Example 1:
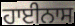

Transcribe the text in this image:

ਹਾਈਨਾਸ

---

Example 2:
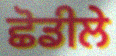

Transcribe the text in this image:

ਛੋਡੀਲੇ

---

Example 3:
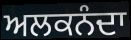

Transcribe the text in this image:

ਅਲਕਨੰਦਾ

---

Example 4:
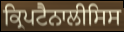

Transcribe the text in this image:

ਕ੍ਰਿਪਟੈਨਾਲੀਸਿਸ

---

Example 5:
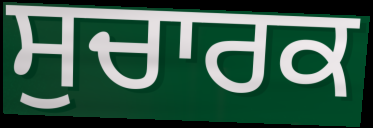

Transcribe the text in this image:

ਸੁਚਾਰਕ